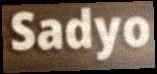
Sadyo